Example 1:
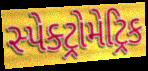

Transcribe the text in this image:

સ્પેક્ટ્રોમેટ્રિક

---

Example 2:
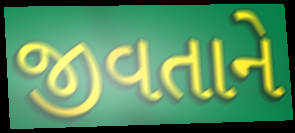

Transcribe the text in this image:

જીવતાને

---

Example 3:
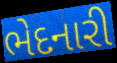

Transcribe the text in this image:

ભેદનારી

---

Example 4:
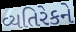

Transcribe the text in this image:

વ્યતિરેકને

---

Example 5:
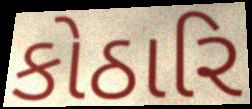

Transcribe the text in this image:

કોઠારિ